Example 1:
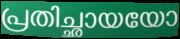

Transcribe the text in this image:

പ്രതിച്ഛായയോ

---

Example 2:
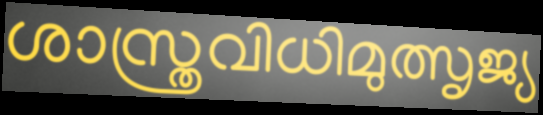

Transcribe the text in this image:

ശാസ്ത്രവിധിമുത്സൃജ്യ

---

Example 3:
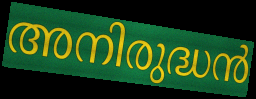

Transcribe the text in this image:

അനിരുദ്ധൻ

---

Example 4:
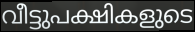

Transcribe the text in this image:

വീട്ടുപക്ഷികളുടെ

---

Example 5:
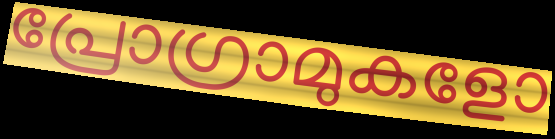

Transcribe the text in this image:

പ്രോഗ്രാമുകളോ